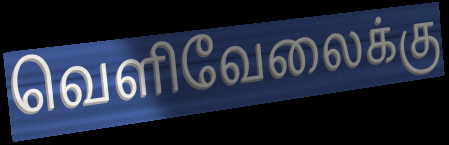
வெளிவேலைக்கு